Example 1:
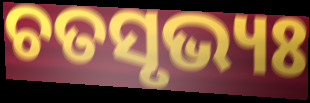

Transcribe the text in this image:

ଚତସୃଭ୍ୟଃ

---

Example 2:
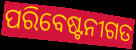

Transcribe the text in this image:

ପରିବେଷ୍ଟନୀଗତ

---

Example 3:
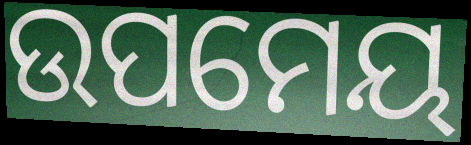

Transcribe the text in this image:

ଉପମେୟ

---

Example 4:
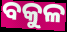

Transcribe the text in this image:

ବକୁଳ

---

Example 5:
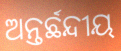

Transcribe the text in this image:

ଅନ୍ତର୍ଛନ୍ଦୀୟ